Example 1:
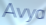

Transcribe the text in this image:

Avya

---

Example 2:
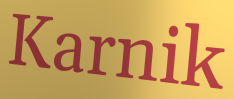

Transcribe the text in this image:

Karnik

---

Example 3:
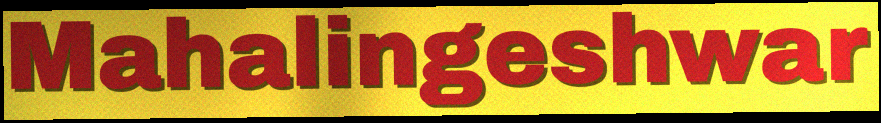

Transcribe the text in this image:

Mahalingeshwar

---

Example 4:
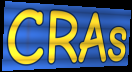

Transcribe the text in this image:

CRAs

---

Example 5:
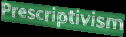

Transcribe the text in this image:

Prescriptivism